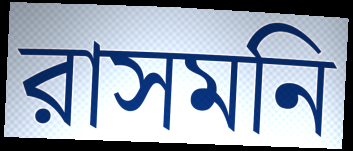
রাসমনি